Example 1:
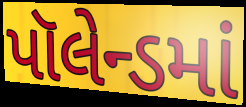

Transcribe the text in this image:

પૉલેન્ડમાં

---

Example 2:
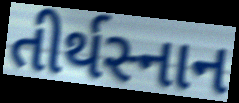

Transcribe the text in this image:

તીર્થસ્નાન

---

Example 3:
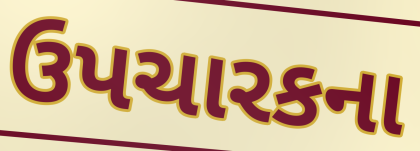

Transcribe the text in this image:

ઉપચારકના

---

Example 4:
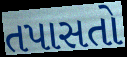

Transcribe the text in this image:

તપાસતો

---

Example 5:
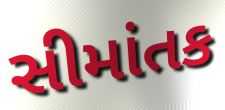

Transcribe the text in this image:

સીમાંતક